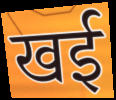
खई